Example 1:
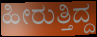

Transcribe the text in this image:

ಹೀರುತ್ತಿದ್ದ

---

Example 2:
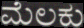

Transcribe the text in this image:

ಮೆಲಕು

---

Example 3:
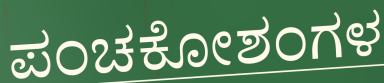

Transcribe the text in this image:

ಪಂಚಕೋಶಂಗಳ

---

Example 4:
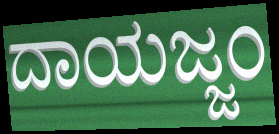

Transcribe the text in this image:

ದಾಯಜ್ಜಂ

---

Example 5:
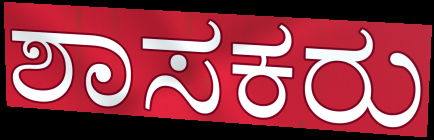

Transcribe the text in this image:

ಶಾಸಕರು